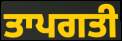
ਤਾਪਗਤੀ